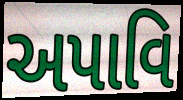
અપાવિ